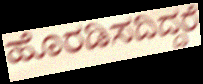
ಹೊರಡಿಸದಿದ್ದರೆ